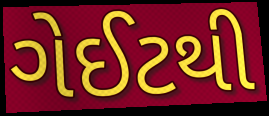
ગેઈટથી